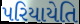
પરિયાયેતિ